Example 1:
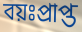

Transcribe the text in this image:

বয়ঃপ্রাপ্ত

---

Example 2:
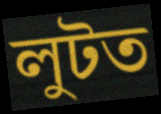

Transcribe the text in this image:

লুটত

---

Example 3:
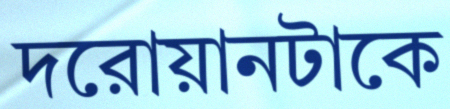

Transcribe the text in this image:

দরোয়ানটাকে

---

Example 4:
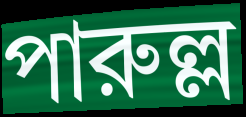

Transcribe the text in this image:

পারুল্ল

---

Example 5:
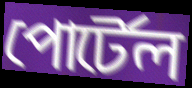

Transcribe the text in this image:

পোর্টেল